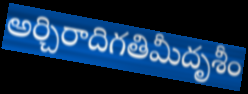
అర్చిరాదిగతిమీదృశీం